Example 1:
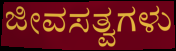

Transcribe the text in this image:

ಜೀವಸತ್ವಗಳು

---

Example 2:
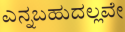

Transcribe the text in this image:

ಎನ್ನಬಹುದಲ್ಲವೇ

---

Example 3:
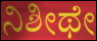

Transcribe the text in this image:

ನಿಶೀಥೇ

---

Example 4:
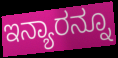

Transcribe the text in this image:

ಇನ್ಯಾರನ್ನೂ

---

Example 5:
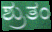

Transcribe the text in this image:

ಶ್ರುತಂ